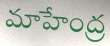
మాహేంద్ర